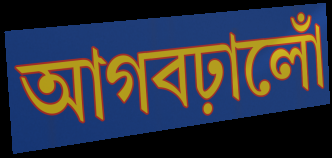
আগবঢ়ালোঁ